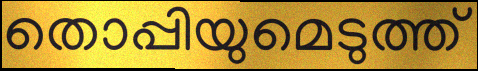
തൊപ്പിയുമെടുത്ത്